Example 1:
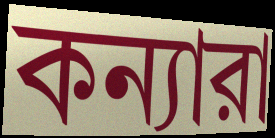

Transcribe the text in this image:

কন্যারা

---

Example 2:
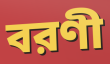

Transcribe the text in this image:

বরণী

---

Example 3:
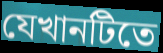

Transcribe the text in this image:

যেখানটিতে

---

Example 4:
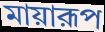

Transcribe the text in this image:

মায়ারূপ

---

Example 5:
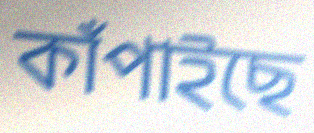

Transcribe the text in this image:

কাঁপাইছে